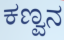
ಕಣ್ವನ